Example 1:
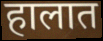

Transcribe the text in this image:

हालात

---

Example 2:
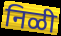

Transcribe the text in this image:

निळी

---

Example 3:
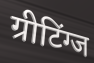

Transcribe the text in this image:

ग्रीटिंग्ज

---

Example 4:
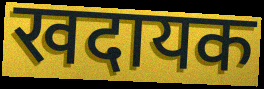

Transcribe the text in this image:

खदायक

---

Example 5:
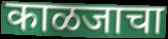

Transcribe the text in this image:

काळजाचा